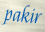
pakir